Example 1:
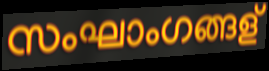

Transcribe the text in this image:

സംഘാംഗങ്ങള്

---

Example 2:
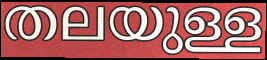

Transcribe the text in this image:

തലയുള്ള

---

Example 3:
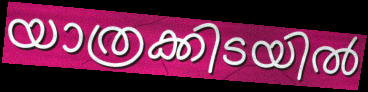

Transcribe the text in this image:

യാത്രക്കിടയിൽ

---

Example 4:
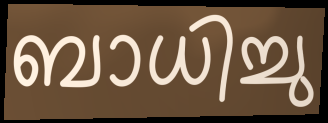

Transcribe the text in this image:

ബാധിച്ചു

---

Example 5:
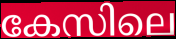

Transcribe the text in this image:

കേസിലെ